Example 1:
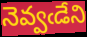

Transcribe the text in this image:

నెవ్వఁడేని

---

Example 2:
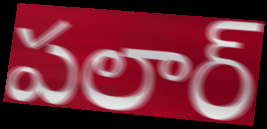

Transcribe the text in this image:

పలార్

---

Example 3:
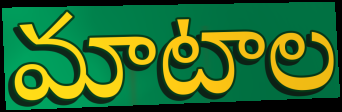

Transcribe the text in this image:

మాటాల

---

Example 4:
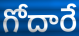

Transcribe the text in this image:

గోదారే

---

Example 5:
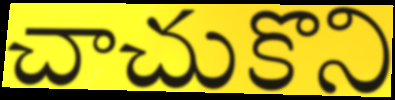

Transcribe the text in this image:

చాచుకొని